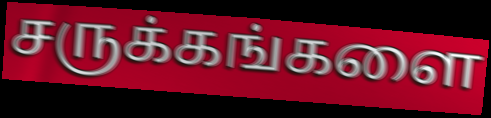
சருக்கங்களை